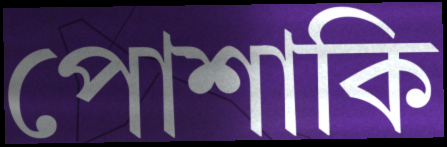
পোশাকি